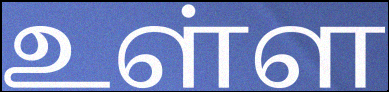
உள்ள